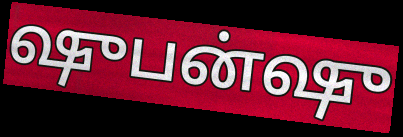
ஷுபன்ஷு